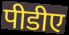
पीडीए